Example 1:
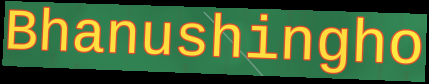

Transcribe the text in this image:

Bhanushingho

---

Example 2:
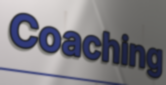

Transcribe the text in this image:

Coaching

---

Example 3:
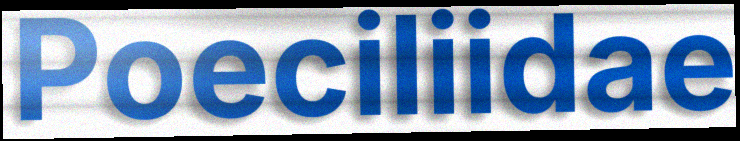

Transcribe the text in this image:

Poeciliidae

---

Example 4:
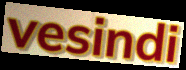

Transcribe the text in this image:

vesindi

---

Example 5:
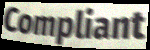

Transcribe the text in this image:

Compliant